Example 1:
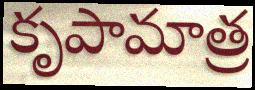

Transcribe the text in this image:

కృపామాత్ర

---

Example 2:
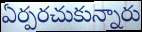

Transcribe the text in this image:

ఏర్పరచుకున్నారు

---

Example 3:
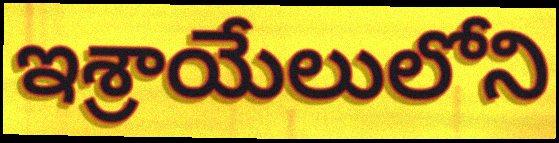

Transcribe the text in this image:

ఇశ్రాయేలులోని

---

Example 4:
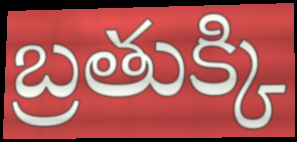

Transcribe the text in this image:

బ్రతుక్కి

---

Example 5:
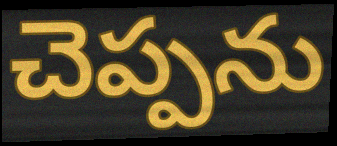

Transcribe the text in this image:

చెప్పను